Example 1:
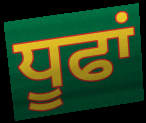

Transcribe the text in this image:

ਧੂਫਾਂ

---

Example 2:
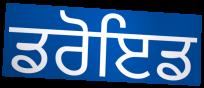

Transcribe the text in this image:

ਡਰੋਇਡ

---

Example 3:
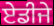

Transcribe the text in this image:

ਏਡੀਜੇ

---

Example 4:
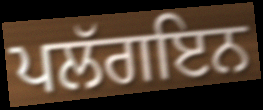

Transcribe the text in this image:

ਪਲੱਗਇਨ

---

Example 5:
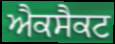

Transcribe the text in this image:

ਐਕਸੈਕਟ